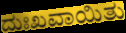
ದುಃಖವಾಯಿತು